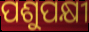
ପଶୁପକ୍ଷୀ